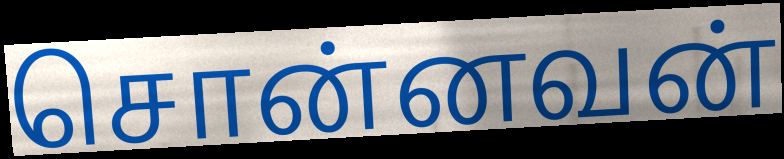
சொன்னவன்